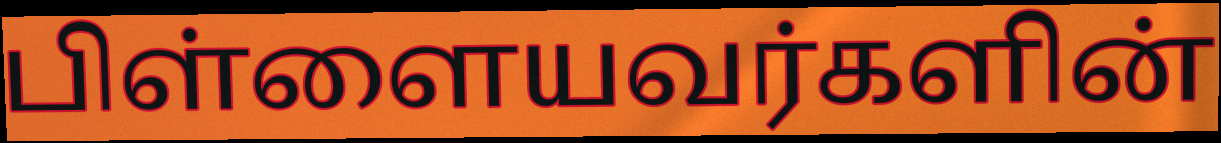
பிள்ளையவர்களின்